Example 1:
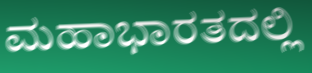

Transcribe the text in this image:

ಮಹಾಭಾರತದಲ್ಲಿ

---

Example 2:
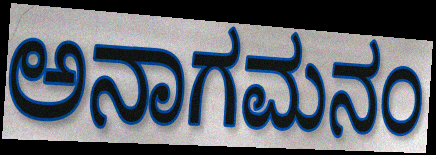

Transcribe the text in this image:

ಅನಾಗಮನಂ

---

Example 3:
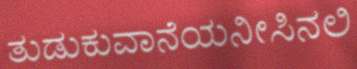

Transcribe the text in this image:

ತುಡುಕುವಾನೆಯನೀಸಿನಲಿ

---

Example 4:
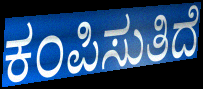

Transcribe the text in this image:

ಕಂಪಿಸುತಿದೆ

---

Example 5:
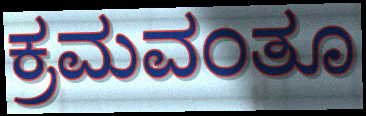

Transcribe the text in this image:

ಕ್ರಮವಂತೂ